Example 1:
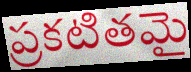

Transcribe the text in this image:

ప్రకటితమై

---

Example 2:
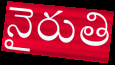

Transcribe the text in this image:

నైరుతి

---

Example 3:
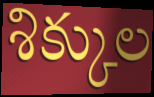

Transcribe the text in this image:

శిక్కుల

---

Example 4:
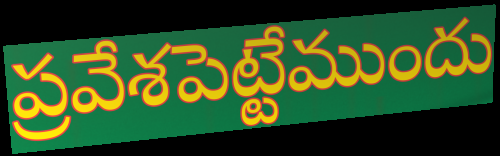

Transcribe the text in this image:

ప్రవేశపెట్టేముందు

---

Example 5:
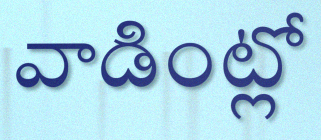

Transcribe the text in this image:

వాడింట్లో